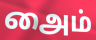
அைம்